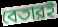
বেতারই